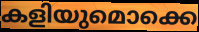
കളിയുമൊക്കെ